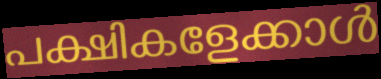
പക്ഷികളേക്കാൾ